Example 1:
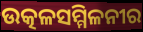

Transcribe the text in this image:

ଉତ୍କଳସମ୍ମିଳନୀର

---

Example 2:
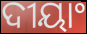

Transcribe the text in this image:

ଦୀୟାଂ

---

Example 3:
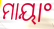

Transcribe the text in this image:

ମାୟାଂ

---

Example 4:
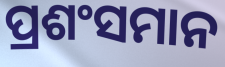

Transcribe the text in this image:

ପ୍ରଶଂସମାନ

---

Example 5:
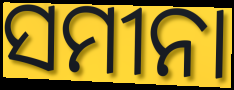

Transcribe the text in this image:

ସମୀନା